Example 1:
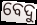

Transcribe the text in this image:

ବେଦୁ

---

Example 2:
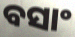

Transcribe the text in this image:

ବସାଂ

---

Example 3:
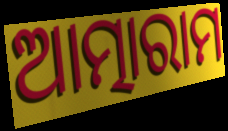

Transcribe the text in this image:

ଆତ୍ମାରାମ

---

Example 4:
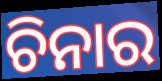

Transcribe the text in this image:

ଚିନାର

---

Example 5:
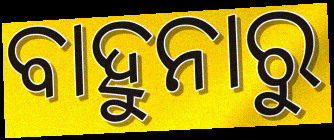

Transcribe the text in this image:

ବାହୁନାରୁ